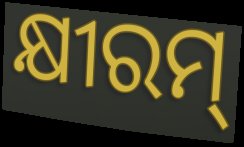
କ୍ଷୀରମ୍